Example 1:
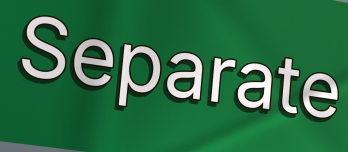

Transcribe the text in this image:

Separate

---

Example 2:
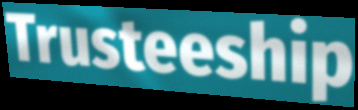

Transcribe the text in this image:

Trusteeship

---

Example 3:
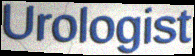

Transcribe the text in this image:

Urologist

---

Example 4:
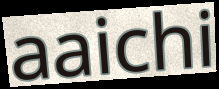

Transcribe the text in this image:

aaichi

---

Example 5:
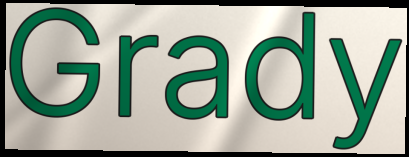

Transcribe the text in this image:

Grady